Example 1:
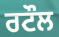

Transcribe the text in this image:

ਰਟੌਲ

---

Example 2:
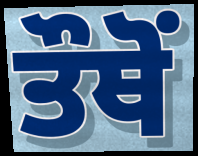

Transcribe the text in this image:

ਤੌਥੋਂ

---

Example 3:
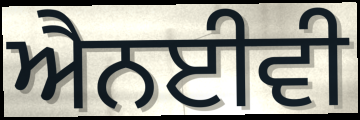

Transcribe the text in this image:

ਐਨਈਵੀ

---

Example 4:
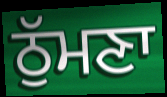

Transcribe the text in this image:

ਠੁੱਮਣਾ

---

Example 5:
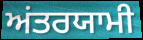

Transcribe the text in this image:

ਅਂਤਰਯਾਮੀ